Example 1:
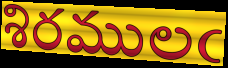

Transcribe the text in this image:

శిరములఁ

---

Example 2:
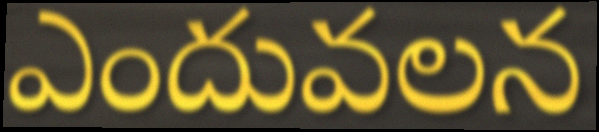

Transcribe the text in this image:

ఎందువలన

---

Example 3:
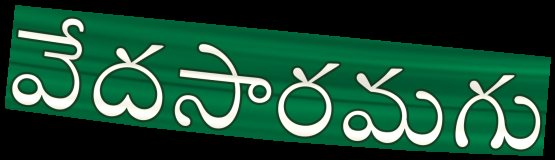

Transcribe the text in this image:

వేదసారమగు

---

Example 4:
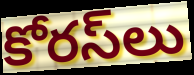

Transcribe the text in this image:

కోరస్‌లు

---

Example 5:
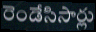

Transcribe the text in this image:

రెండేసిసార్లు